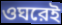
ওঘরেই